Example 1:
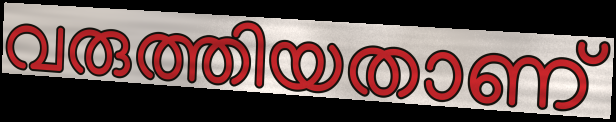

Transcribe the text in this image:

വരുത്തിയതാണ്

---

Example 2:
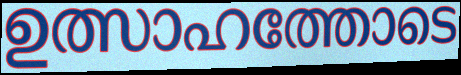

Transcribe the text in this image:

ഉത്സാഹത്തോടെ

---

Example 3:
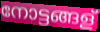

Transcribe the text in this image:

നോട്ടങ്ങള്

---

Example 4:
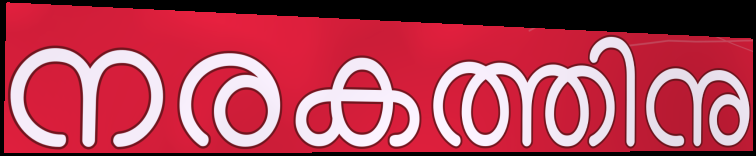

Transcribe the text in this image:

നരകത്തിനു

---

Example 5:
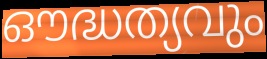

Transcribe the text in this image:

ഔദ്ധത്യവും